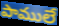
పాములే